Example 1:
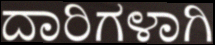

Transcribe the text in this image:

ದಾರಿಗಳಾಗಿ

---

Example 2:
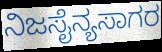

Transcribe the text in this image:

ನಿಜಸೈನ್ಯಸಾಗರ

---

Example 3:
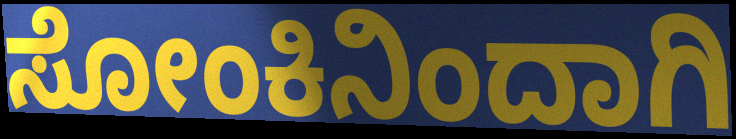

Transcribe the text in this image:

ಸೋಂಕಿನಿಂದಾಗಿ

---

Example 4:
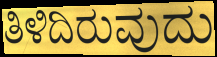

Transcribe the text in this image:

ತಿಳಿದಿರುವುದು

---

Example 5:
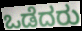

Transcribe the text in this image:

ಒಡೆದರು